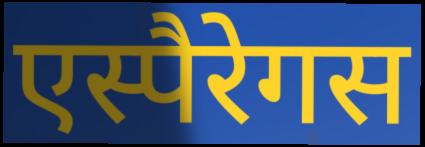
एस्पैरेगस